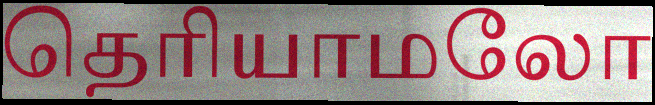
தெரியாமலோ